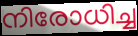
നിരോധിച്ച